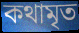
কথামৃত